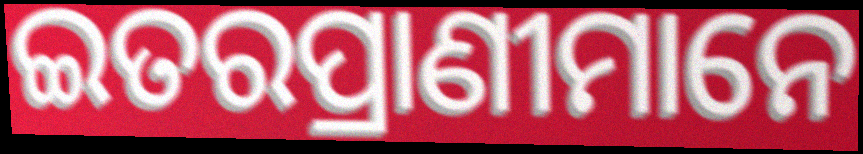
ଇତରପ୍ରାଣୀମାନେ